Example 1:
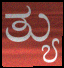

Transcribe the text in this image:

ತ್ಯು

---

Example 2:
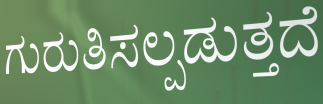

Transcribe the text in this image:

ಗುರುತಿಸಲ್ಪಡುತ್ತದೆ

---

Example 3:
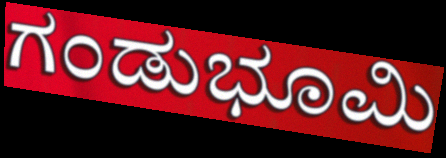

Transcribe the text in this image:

ಗಂಡುಭೂಮಿ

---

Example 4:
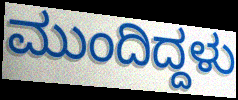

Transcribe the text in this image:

ಮುಂದಿದ್ದಳು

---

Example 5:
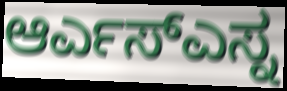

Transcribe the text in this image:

ಆರ್ಎಸ್ಎಸ್ನ